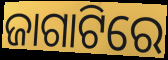
ଜାଗାଟିରେ